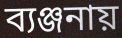
ব্যঞ্জনায়